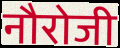
नौरोजी